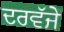
ਦਰਵੱਜੇ